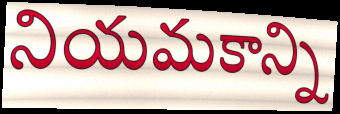
నియమకాన్ని